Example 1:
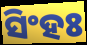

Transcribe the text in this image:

ସିଂହଃ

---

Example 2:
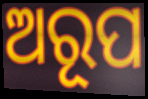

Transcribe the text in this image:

ଅରୂପ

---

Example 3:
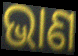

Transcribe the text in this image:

ଭାଣ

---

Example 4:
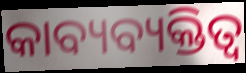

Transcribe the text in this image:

କାବ୍ୟବ୍ୟକ୍ତିତ୍ୱ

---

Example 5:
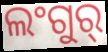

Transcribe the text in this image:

ଲଂଗୁର୍